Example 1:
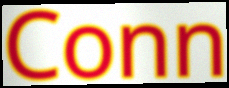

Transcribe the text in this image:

Conn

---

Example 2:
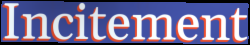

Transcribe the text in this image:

Incitement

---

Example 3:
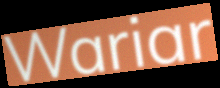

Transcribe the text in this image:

Wariar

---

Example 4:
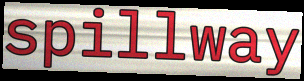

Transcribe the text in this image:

spillway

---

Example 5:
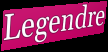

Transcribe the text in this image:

Legendre